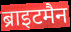
ब्राइटमैन